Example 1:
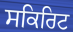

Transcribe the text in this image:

ਸਕਿਰਿਟ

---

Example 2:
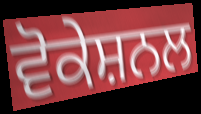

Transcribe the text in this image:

ਵੋਕੇਸ਼ਨਲ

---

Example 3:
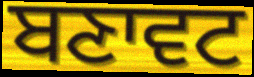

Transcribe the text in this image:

ਬਣਾਵਟ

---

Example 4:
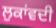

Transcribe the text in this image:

ਲੁਕਾਂਵਦੀ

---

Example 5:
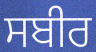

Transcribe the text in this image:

ਸਬੀਰ